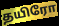
தயிரோ